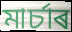
মাৰ্চাৰ